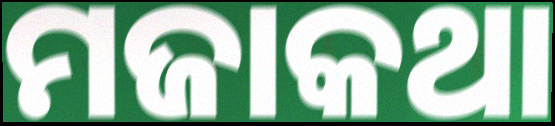
ମଜାକଥା